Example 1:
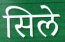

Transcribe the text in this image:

सिले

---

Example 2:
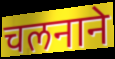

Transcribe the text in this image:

चलनाने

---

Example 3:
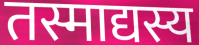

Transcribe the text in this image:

तस्माद्यस्य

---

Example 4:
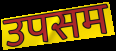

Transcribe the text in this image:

उपसम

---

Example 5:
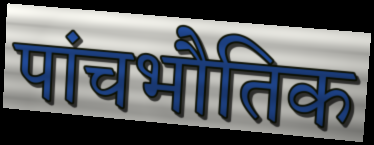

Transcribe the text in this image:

पांचभौतिक